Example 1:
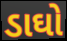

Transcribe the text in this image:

ડાઘો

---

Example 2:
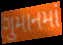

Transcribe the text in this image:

ગુમાનમાં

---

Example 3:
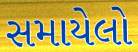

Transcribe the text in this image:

સમાયેલો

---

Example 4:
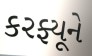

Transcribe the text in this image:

કરફ્યૂને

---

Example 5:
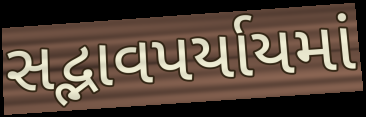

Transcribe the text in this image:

સદ્ભાવપર્યાયમાં